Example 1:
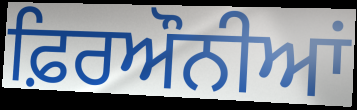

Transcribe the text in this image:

ਫ਼ਿਰਔਨੀਆਂ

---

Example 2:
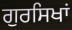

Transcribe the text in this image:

ਗੁਰਸਿਖਾਂ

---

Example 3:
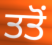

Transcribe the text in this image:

ਤਤੋਂ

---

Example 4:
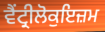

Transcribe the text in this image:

ਵੈਂਟ੍ਰੀਲੋਕੁਇਜ਼ਮ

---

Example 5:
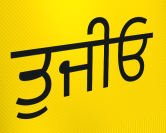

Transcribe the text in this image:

ਤੁਜੀਓ